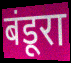
बंडूरा